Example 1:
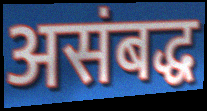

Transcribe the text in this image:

असंबद्ध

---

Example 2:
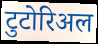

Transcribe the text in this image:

टुटोरिअल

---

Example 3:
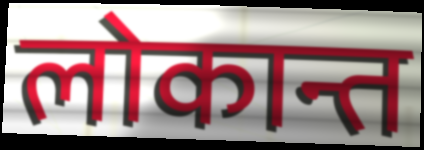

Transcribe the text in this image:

लोकान्त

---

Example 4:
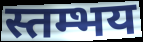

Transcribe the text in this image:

स्तम्भय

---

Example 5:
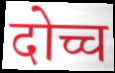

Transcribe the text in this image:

दोच्च